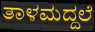
ತಾಳಮದ್ದಲೆ